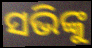
ସଭିଙ୍କୁ